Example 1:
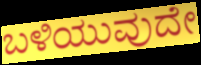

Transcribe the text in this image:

ಬಳಿಯುವುದೇ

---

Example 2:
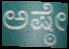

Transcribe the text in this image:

ಅಷ್ಠೇ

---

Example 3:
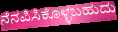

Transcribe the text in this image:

ನೆನಪಿಸಿಕೊಳ್ಳಬಹುದು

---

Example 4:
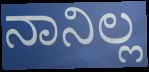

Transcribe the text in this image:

ನಾನಿಲ್ಲ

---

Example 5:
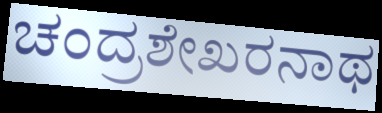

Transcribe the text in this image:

ಚಂದ್ರಶೇಖರನಾಥ